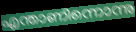
എന്താണിന്നൊന്നു